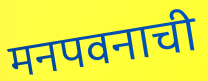
मनपवनाची